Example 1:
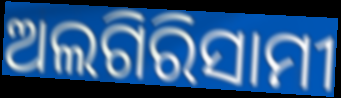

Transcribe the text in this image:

ଅଲଗିରିସାମୀ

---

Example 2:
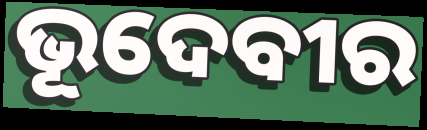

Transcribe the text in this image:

ଭୂଦେବୀର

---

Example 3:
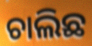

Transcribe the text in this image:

ଚାଲିଛ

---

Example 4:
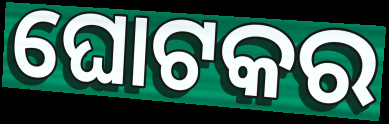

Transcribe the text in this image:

ଘୋଟକର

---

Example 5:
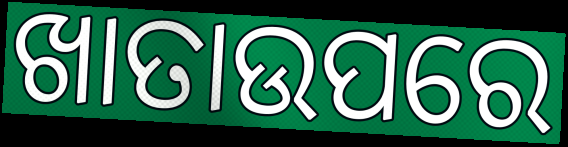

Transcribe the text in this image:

ଖାତାଉପରେ